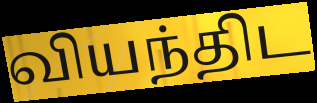
வியந்திட